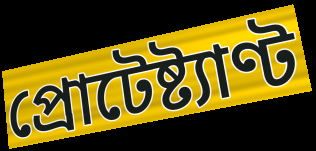
প্রোটেষ্ট্যাণ্ট